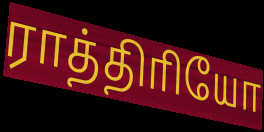
ராத்திரியோ